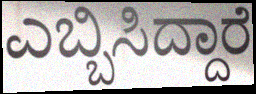
ಎಬ್ಬಿಸಿದ್ದಾರೆ